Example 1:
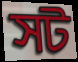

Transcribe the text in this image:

সট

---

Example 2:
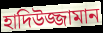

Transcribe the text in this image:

হাদিউজ্জামান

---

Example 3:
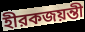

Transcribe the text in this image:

হীরকজয়ন্তী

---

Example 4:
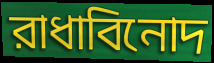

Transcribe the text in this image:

রাধাবিনোদ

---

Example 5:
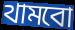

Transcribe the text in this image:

থামবো